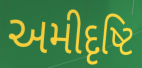
અમીદૃષ્ટિ